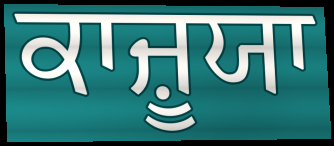
ਕਾਜ਼ੂਯਾ